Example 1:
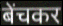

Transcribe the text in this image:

बेंचकर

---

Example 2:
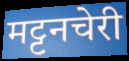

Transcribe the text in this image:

मट्टनचेरी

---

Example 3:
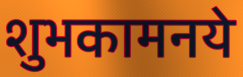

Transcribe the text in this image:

शुभकामनये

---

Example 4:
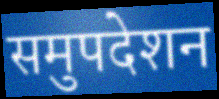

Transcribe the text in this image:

समुपदेशन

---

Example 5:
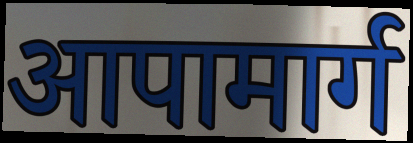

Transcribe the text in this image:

आपामार्ग